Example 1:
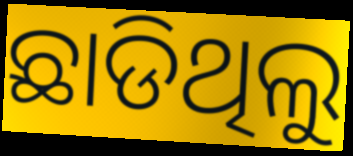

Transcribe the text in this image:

ଛାଡିଥିଲୁ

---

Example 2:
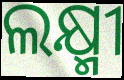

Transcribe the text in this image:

ଲକ୍ଷ୍ମୀ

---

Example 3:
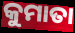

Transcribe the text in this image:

କୁମାତା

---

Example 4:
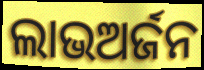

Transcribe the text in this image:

ଲାଭଅର୍ଜନ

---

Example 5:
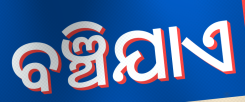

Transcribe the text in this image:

ବଞ୍ଚିଯାଏ